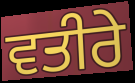
ਵਤੀਰੇ